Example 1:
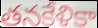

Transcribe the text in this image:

తనకేళికా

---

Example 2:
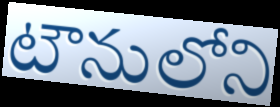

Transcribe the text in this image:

టౌనులోని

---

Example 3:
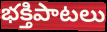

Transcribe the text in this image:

భక్తిపాటలు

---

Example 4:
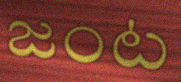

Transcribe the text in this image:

జంట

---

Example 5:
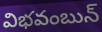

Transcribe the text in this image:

విభవంబున్